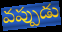
వప్పుడు